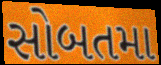
સોબતમા